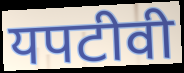
यपटीवी